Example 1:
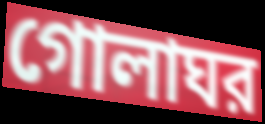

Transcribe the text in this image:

গোলাঘর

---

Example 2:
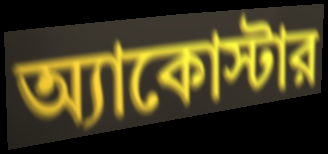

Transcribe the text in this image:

অ্যাকোস্টার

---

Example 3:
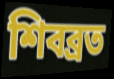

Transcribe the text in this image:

শিবব্রত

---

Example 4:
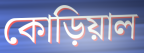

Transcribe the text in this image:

কোড়িয়াল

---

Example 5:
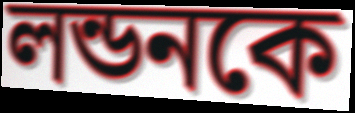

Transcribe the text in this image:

লন্ডনকে